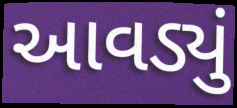
આવડ્યું